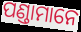
ପଣ୍ଡାମାନେ